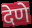
देणे